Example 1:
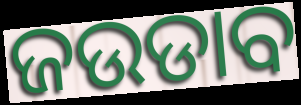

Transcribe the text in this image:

ଜଉଡାବ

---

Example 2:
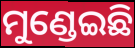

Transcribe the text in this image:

ମୁଣ୍ଡେଇଛି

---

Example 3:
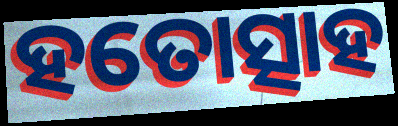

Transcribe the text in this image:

ହତୋତ୍ସାହ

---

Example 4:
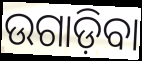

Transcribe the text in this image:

ଉଗାଡ଼ିବା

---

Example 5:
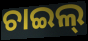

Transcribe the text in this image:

ଚାଇଲ୍